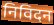
निविदन